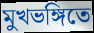
মুখভঙ্গিতে